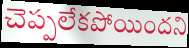
చెప్పలేకపోయిందని